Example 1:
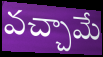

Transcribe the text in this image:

వచ్చామే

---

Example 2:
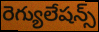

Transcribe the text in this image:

రెగ్యులేషన్స్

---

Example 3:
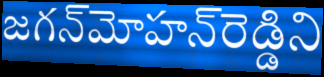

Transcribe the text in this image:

జగన్‌మోహన్‌రెడ్డిని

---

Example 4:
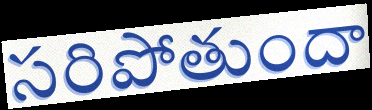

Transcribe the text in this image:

సరిపోతుందా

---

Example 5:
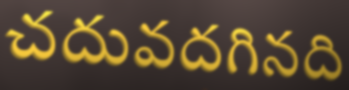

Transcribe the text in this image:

చదువదగినది